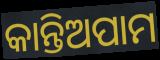
କାନ୍ତିଅପାମ